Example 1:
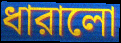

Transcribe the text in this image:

ধারালো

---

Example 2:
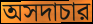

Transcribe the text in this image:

অসদাচার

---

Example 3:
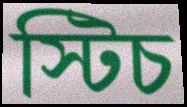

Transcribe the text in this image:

স্টিচ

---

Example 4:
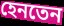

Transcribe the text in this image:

হেনতেন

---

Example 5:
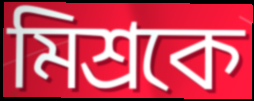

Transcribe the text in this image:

মিশ্রকে